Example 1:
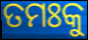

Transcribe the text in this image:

ତମଃକୁ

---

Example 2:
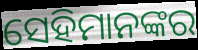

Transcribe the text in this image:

ସେହିମାନଙ୍କର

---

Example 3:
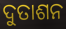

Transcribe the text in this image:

ଦୁତାଶନ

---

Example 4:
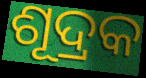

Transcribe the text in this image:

ଶୂଦ୍ରକ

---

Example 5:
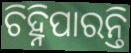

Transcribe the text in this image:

ଚିହ୍ନିପାରନ୍ତି